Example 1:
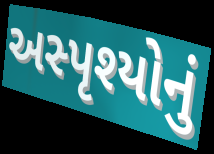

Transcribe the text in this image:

અસ્પૃશ્યોનું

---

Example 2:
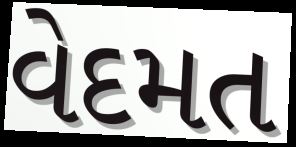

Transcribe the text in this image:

વેદમત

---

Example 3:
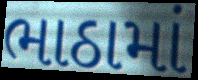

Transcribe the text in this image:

ભાઠામાં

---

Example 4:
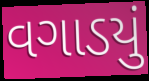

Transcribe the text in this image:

વગાડયું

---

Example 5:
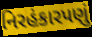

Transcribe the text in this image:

નિરહંકારપણું